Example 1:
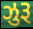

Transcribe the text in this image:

ઝુરૂ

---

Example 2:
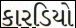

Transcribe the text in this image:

કારડિયો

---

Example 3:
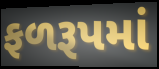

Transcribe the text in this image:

ફળરૂપમાં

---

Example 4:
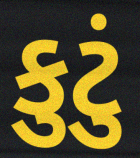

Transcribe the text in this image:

કુટું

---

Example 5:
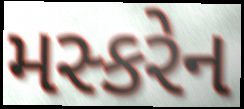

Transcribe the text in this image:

મસ્કરેન